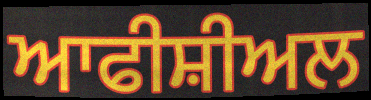
ਆਫੀਸ਼ੀਅਲ